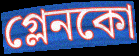
গ্লেনকো